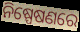
ନିଷ୍ପେଷଣରେ